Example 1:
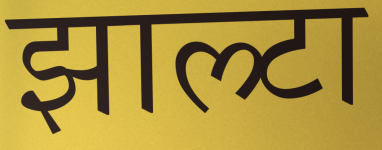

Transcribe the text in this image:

झाल्टा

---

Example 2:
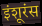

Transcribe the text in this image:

इंशूरंस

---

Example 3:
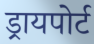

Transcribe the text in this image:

ड्रायपोर्ट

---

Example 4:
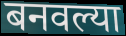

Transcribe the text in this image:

बनवल्या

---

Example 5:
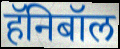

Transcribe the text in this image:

हॅनिबॉल